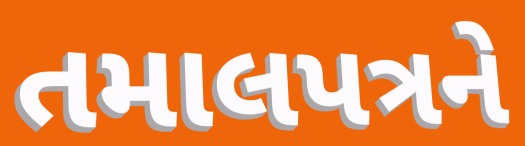
તમાલપત્રને